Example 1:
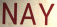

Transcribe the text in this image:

NAY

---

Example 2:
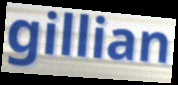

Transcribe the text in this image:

gillian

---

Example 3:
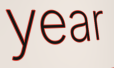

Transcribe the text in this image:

year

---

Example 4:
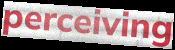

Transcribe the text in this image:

perceiving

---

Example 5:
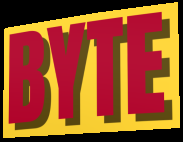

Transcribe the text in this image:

BYTE